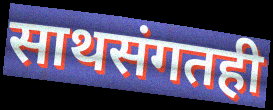
साथसंगतही